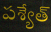
పశ్యేత్